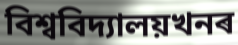
বিশ্ববিদ্যালয়খনৰ